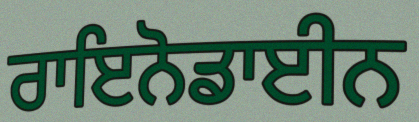
ਰਾਇਨੋਡਾਈਨ